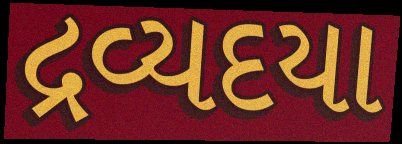
દ્રવ્યદયા